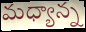
మధ్యాన్న